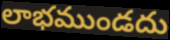
లాభముండదు